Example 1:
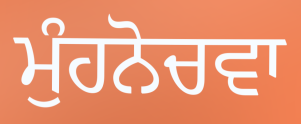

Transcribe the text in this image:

ਮੁੰਹਨੋਚਵਾ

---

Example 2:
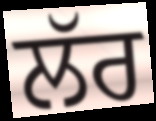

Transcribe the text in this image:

ਲੱਰ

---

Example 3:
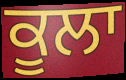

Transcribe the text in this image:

ਕੂਲਾ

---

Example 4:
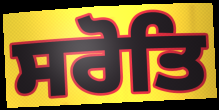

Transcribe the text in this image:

ਸਰੋਤਿ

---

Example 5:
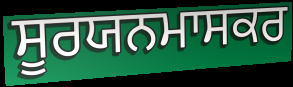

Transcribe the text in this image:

ਸੂਰਯਨਮਾਸਕਰ